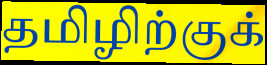
தமிழிற்குக்